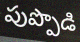
పుప్పొడి